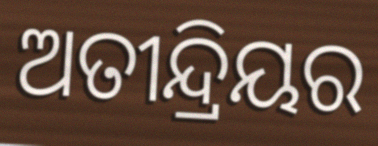
ଅତୀନ୍ଦ୍ରିୟର